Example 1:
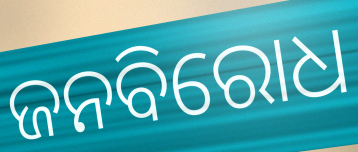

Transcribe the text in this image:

ଜନବିରୋଧ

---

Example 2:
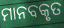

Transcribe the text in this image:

ମାନବକୃତ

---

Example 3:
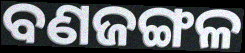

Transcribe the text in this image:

ବଣଜଙ୍ଗଳ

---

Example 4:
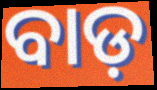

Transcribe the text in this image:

ବାଡ଼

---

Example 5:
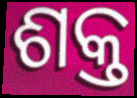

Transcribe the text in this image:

ଶକ୍ତ